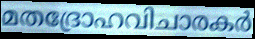
മതദ്രോഹവിചാരകർ